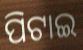
ପିଟାଇ